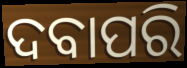
ଦବାପରି